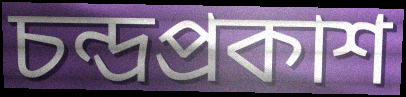
চন্দ্ৰপ্ৰকাশ